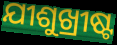
ଯୀଶୁଖ୍ରୀଷ୍ଟ